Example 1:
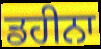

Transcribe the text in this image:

ਡਹੀਨਾ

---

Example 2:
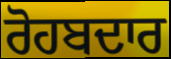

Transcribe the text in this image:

ਰੋਹਬਦਾਰ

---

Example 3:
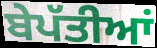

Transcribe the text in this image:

ਬੇਪੱਤੀਆਂ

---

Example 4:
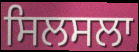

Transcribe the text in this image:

ਸਿਲਸਲਾ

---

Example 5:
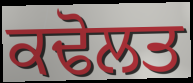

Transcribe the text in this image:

ਕਢੋਲਤ